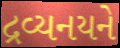
દ્રવ્યનયને